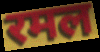
रमल